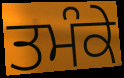
ਤਮੰਕੇ